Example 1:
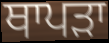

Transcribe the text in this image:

ਥਾਪੜਾ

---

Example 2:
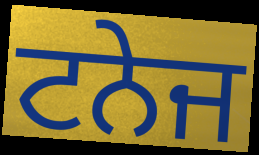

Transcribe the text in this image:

ਟਨੇਜ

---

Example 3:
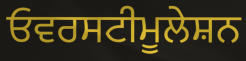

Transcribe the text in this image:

ਓਵਰਸਟੀਮੂਲੇਸ਼ਨ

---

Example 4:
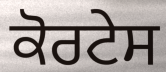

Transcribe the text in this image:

ਕੋਰਟੇਸ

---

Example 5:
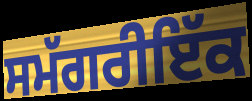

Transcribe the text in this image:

ਸਮੱਗਰੀਇੱਕ